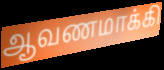
ஆவணமாக்கி